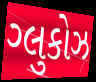
ગ્લુકોઝ